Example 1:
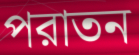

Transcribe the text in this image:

পরাতন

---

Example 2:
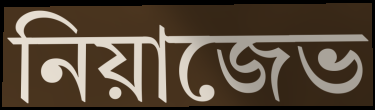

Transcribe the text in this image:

নিয়াজেভ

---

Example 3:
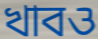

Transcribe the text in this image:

খাবও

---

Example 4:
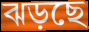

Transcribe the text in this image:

ঝড়ছে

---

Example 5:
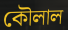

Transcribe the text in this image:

কৌলাল